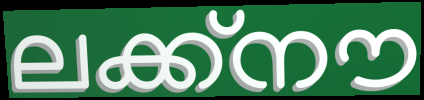
ലക്ക്നൗ